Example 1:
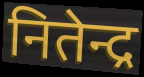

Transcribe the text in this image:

नितेन्द्र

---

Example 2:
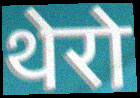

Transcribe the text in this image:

थेरो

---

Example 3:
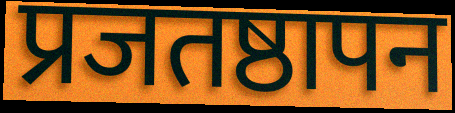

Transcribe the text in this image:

प्रजतष्ठापन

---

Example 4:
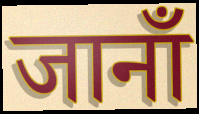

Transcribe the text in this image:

जानाँ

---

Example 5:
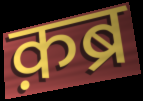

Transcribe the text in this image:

क़ब्र